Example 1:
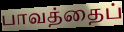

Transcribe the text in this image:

பாவத்தைப்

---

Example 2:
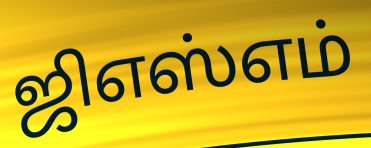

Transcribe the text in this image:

ஜிஎஸ்எம்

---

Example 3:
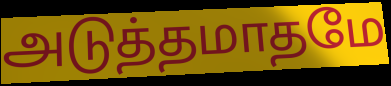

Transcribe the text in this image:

அடுத்தமாதமே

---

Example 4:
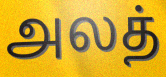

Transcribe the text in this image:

அலத்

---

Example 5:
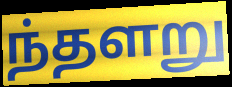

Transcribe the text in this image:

ந்தளறு